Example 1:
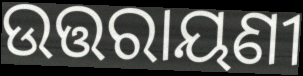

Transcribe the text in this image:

ଉତ୍ତରାୟଣୀ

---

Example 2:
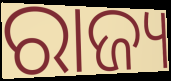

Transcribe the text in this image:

ରାଜ୍ୟ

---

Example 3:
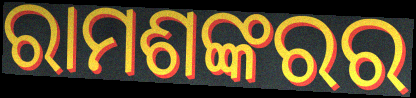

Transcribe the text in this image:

ରାମଶଙ୍କରର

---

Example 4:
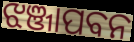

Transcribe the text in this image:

ଝଞ୍ଜାପବନ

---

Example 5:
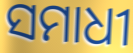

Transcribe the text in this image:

ସମାଧୀ